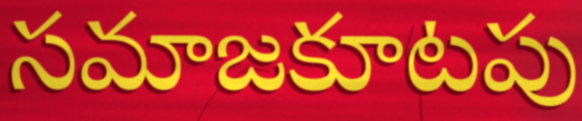
సమాజకూటపు